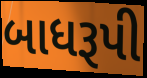
બાધરૂપી